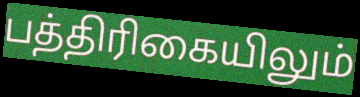
பத்திரிகையிலும்